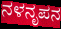
ನಳನೃಪನ